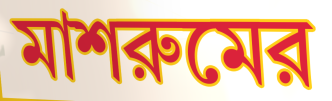
মাশরুমের